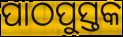
ପାଠପୁସ୍ତକ